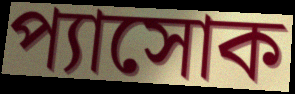
প্যাসোক